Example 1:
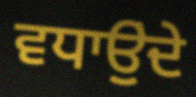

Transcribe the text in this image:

ਵਧਾਉੁਂਦੇ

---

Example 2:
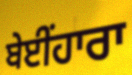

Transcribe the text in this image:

ਬੇਈਂਹਾਰਾ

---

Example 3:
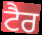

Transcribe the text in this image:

ਟੈਰ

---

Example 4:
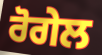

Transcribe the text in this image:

ਰੋਗੇਲ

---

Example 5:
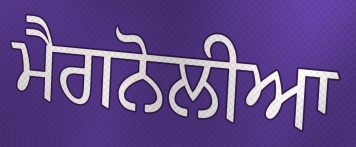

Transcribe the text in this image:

ਮੈਗਨੋਲੀਆ